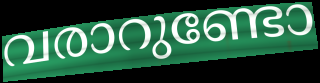
വരാറുണ്ടോ